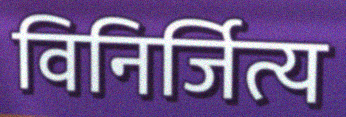
विनिर्जित्य